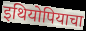
इथियोपियाचा